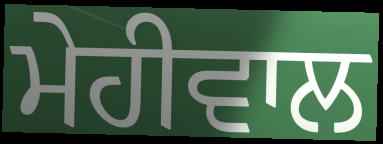
ਮੇਹੀਵਾਲ